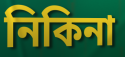
নিকিনা